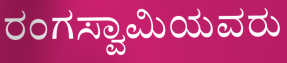
ರಂಗಸ್ವಾಮಿಯವರು